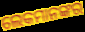
ଲେକମାନଙ୍କର